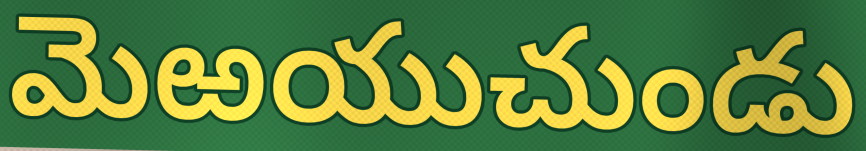
మెఱయుచుండు